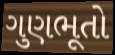
ગુણભૂતો